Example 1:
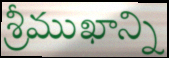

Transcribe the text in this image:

శ్రీముఖాన్ని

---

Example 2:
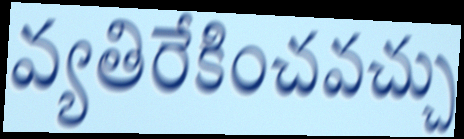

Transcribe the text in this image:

వ్యతిరేకించవచ్చు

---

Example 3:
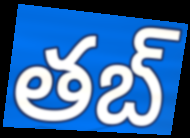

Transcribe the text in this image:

తబ్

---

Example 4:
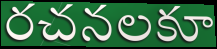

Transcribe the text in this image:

రచనలకూ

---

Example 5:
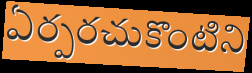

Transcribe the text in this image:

ఏర్పరచుకొంటిని